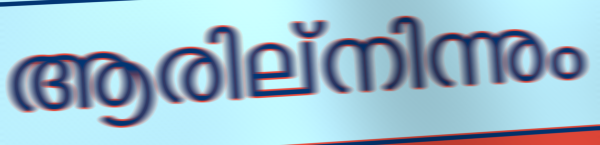
ആരില്നിന്നും